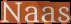
Naas